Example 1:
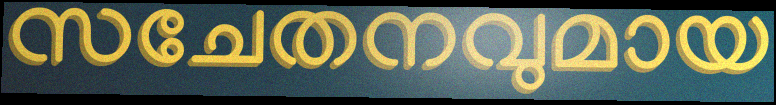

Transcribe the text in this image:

സചേതനവുമായ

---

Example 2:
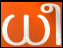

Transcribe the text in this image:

ധീ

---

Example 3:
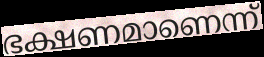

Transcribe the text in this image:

ഭക്ഷണമാണെന്ന്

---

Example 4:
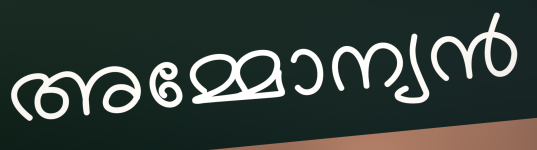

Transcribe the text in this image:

അമ്മോന്യൻ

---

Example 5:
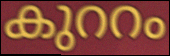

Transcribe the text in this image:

കുററം